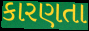
કારણતા